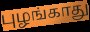
புழங்காது